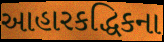
આહારકદ્ધિકના